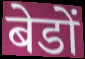
बेडों